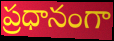
ప్రధానంగా